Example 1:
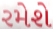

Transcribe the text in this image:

રમેશે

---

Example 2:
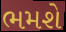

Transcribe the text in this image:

ભમશે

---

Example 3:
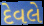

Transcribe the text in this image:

દેવલે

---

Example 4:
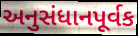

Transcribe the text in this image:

અનુસંધાનપૂર્વક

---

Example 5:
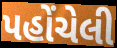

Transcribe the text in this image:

પહોંચેલી